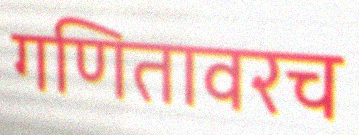
गणितावरच